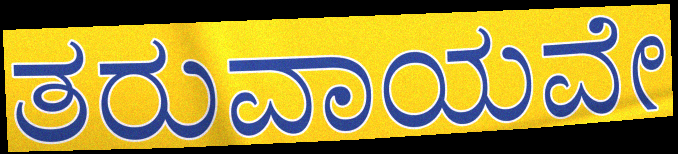
ತರುವಾಯವೇ